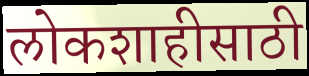
लोकशाहीसाठी